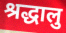
श्रद्धालु